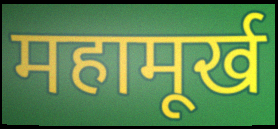
महामूर्ख